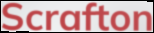
Scrafton